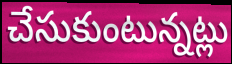
చేసుకుంటున్నట్లు